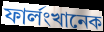
ফার্লংখানেক